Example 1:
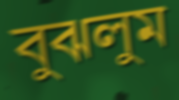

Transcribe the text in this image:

বুঝলুম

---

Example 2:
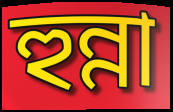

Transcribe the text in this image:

হুন্না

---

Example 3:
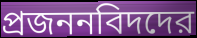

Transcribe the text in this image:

প্রজননবিদদের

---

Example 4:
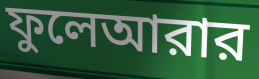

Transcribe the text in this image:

ফুলেআরার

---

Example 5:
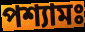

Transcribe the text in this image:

পশ্যামঃ